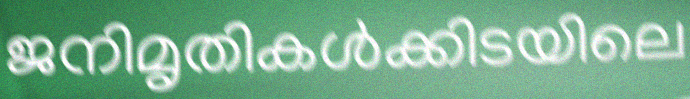
ജനിമൃതികൾക്കിടയിലെ